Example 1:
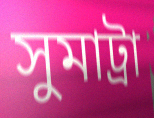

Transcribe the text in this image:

সুমাট্ৰা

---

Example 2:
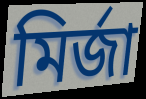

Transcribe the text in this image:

মিৰ্জা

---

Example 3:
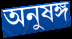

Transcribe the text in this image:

অনুষঙ্গ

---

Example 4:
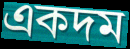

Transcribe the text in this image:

একদম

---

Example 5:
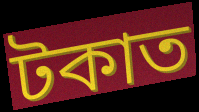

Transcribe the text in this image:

টকাত